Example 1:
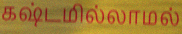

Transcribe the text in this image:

கஷ்டமில்லாமல்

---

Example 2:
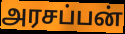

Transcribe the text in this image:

அரசப்பன்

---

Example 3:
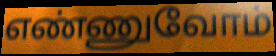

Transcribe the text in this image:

எண்ணுவோம்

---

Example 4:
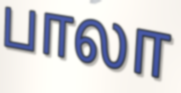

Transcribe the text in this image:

பாலா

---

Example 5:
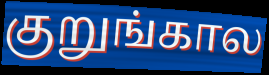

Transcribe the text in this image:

குறுங்கால